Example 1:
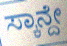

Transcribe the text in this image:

ಸ್ಕಾನ್ದೇ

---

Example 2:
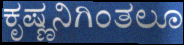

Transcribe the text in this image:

ಕೃಷ್ಣನಿಗಿಂತಲೂ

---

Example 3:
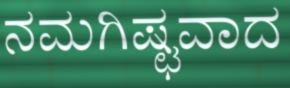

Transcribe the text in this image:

ನಮಗಿಷ್ಟವಾದ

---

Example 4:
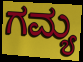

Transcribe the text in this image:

ಗಮ್ಯ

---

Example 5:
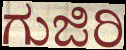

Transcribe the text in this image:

ಗುಜಿರಿ